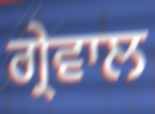
ਗ੍ਰੇਵਾਲ